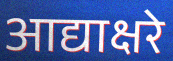
आद्याक्षरे